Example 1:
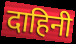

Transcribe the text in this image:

दाहिनी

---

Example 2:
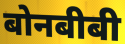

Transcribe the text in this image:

बोनबीबी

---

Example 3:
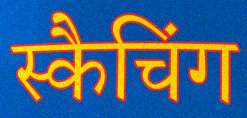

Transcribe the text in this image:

स्कैचिंग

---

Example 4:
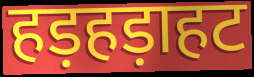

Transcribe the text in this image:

हड़हड़ाहट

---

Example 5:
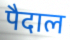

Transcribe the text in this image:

पैदाल